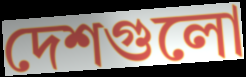
দেশগুলো